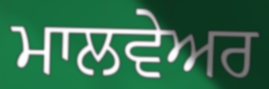
ਮਾਲਵੇਅਰ